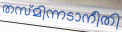
തസ്മിന്നടാനീതി